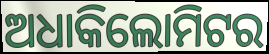
ଅଧାକିଲୋମିଟର